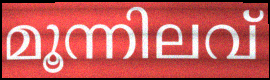
മൂന്നിലവ്